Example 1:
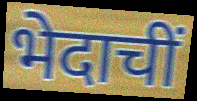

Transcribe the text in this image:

भेदाचीं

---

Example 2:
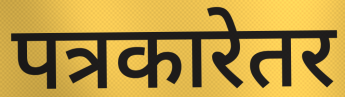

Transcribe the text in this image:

पत्रकारेतर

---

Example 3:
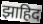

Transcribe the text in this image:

झाहिद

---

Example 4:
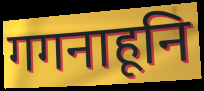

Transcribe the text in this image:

गगनाहूनि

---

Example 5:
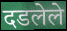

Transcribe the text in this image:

दडलेले